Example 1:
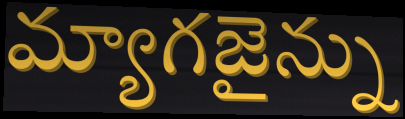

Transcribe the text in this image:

మ్యాగజైన్ను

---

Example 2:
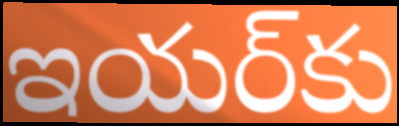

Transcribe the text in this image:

ఇయర్‌కు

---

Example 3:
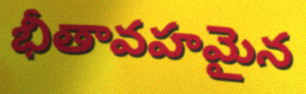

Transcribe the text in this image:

భీతావహమైన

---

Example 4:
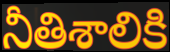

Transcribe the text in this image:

నీతిశాలికి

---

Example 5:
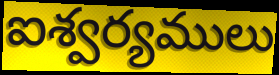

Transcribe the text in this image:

ఐశ్వర్యములు